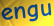
engu